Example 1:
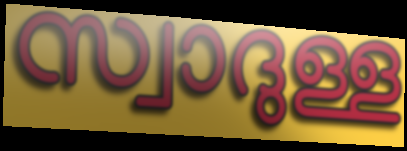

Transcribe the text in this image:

സ്വാദുള്ള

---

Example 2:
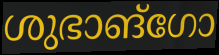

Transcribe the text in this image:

ശുഭാങ്ഗോ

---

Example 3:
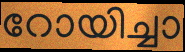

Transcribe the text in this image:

റോയിച്ചാ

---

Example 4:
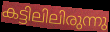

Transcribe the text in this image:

കട്ടിലിലിരുന്നു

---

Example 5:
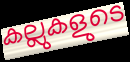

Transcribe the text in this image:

കല്ലുകളുടെ